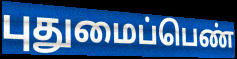
புதுமைப்பெண்